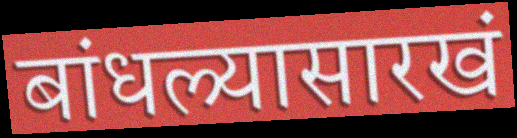
बांधल्यासारखं